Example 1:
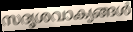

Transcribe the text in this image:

സദൃശവാക്യങ്ങൾ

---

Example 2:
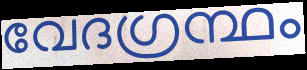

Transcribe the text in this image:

വേദഗ്രന്ഥം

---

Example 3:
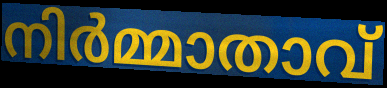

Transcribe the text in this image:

നിർമ്മാതാവ്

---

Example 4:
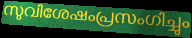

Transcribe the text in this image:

സുവിശേഷംപ്രസംഗിച്ചും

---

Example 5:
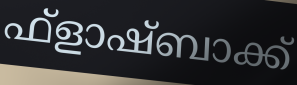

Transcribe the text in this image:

ഫ്ളാഷ്ബാക്ക്